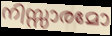
നിസ്സാരമോ